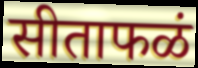
सीताफळं